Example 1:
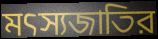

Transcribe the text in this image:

মৎস্যজাতির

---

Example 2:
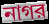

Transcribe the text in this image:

নাগর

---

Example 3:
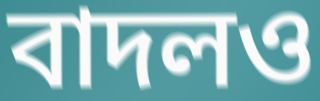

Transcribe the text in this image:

বাদলও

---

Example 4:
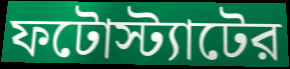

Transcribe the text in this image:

ফটোস্ট্যাটের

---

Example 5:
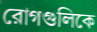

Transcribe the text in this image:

রোগগুলিকে